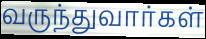
வருந்துவார்கள்